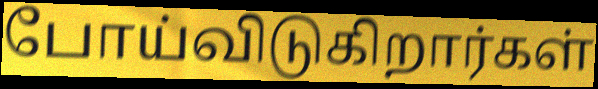
போய்விடுகிறார்கள்